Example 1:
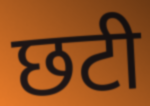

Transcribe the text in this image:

छटी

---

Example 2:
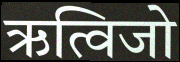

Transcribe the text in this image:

ऋत्विजो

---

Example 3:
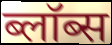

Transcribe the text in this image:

ब्लॉब्स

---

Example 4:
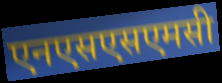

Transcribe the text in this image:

एनएसएसएमसी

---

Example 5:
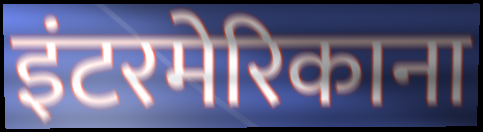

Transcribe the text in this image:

इंटरमेरिकाना